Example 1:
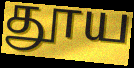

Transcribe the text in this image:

தூய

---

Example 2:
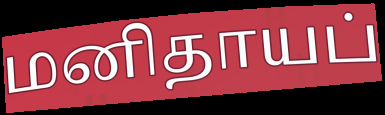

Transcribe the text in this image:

மனிதாயப்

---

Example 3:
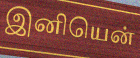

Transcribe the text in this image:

இனியென்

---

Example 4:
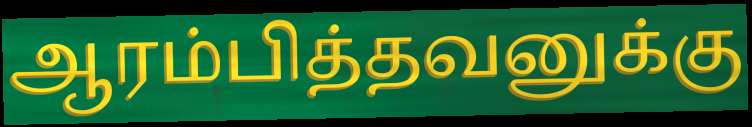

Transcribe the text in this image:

ஆரம்பித்தவனுக்கு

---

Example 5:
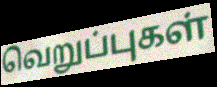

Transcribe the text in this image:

வெறுப்புகள்